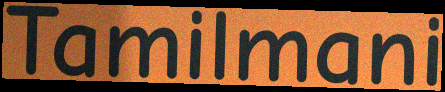
Tamilmani